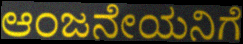
ಆಂಜನೇಯನಿಗೆ